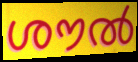
ശൗൽ